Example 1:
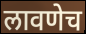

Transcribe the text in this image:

लावणेच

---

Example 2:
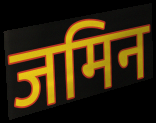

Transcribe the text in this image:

जमिन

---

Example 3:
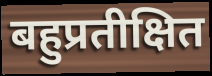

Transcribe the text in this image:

बहुप्रतीक्षित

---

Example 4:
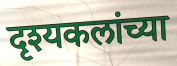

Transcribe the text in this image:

दृश्यकलांच्या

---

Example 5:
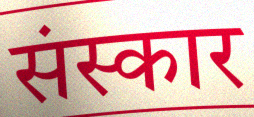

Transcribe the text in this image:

संस्‍कार